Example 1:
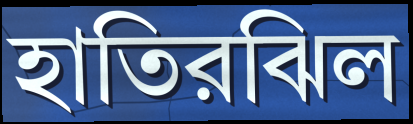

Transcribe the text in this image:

হাতিরঝিল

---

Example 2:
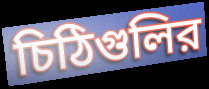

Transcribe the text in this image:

চিঠিগুলির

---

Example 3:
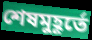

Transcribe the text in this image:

শেষমুহূর্তে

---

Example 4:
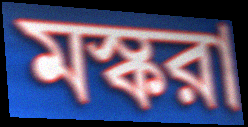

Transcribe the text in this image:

মস্করা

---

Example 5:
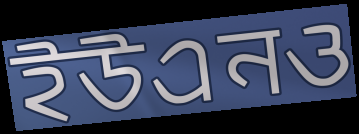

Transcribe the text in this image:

ইউএনও